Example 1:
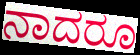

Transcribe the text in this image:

ನಾದರೂ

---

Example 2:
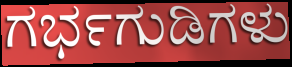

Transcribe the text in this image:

ಗರ್ಭಗುಡಿಗಳು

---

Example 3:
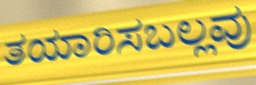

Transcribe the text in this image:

ತಯಾರಿಸಬಲ್ಲವು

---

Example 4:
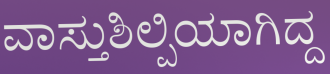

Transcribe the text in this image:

ವಾಸ್ತುಶಿಲ್ಪಿಯಾಗಿದ್ದ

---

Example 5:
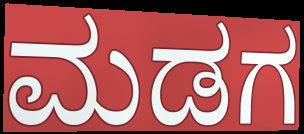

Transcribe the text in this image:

ಮಡಗ